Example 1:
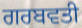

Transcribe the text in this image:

ਗਰਬਵਤੀ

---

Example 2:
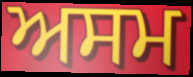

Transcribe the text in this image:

ਅਸਮ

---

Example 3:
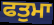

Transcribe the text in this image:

ਫਤੁਮਾ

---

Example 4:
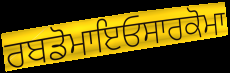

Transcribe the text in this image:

ਰਬਡੋਮਾਇਓਸਾਰਕੋਮਾ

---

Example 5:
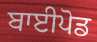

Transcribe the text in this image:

ਬਾਈਪੋਡ